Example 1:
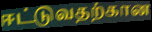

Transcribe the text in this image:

ஈட்டுவதற்கான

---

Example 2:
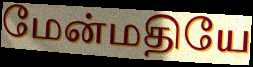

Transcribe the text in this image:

மேன்மதியே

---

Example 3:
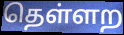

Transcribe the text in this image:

தெள்ளற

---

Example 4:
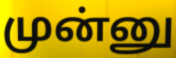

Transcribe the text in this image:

முன்னு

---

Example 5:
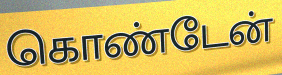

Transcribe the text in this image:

கொண்டேன்